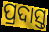
ପ୍ରଦାସ୍ତ